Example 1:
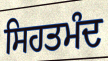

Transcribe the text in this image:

ਸਿਹਤਮੰਦ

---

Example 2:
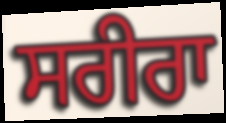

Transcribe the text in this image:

ਸਰੀਰਾ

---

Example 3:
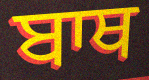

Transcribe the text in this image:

ਬਾਥ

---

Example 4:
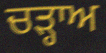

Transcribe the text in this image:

ਚੜ੍ਹਾਅ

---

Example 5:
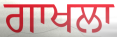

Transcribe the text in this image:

ਗਾਖਲਾ